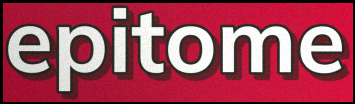
epitome